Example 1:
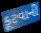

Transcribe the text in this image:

કૂટવાની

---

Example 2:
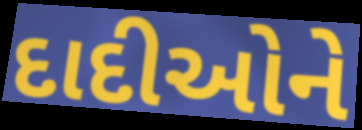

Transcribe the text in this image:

દાદીઓને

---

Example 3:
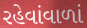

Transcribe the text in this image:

રહેવાંવાળાં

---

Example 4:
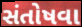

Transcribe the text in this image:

સંતોષવા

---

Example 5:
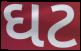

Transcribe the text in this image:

ઘટ